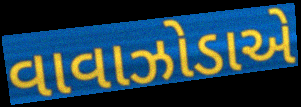
વાવાઝોડાએ